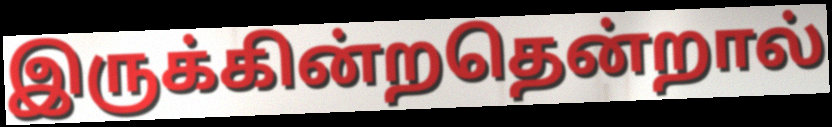
இருக்கின்றதென்றால்